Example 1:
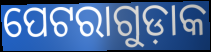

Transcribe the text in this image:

ପେଟରାଗୁଡ଼ାକ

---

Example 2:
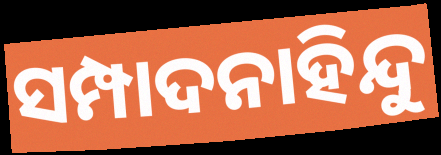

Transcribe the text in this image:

ସମ୍ପାଦନାହିନ୍ଦୁ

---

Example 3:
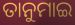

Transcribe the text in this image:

ତାନୁମାଇ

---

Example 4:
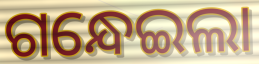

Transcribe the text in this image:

ଗନ୍ଧେଇଲା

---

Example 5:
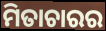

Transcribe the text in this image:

ମିତାଚାରର